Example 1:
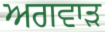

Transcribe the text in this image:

ਅਗਵਾੜ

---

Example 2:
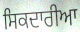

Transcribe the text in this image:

ਸਿਕਦਾਰੀਆ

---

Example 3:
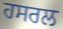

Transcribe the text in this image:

ਹਸਰਲ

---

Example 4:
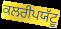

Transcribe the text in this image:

ਕਲਰੀਪਯੱਟੂ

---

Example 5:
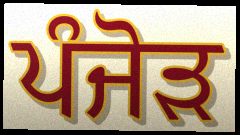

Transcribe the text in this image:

ਪੰਜੋੜ